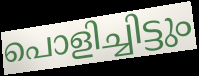
പൊളിച്ചിട്ടും